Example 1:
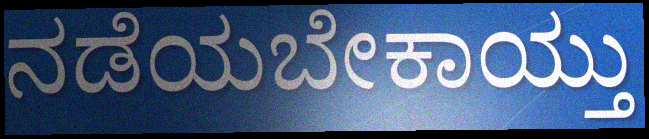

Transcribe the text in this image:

ನಡೆಯಬೇಕಾಯ್ತು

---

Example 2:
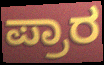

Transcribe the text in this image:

ಪ್ರಾರ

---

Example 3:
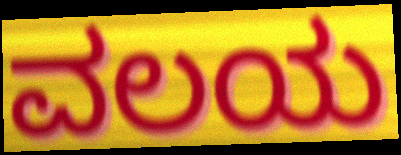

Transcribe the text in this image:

ವಲಯ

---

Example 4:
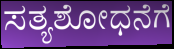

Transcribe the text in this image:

ಸತ್ಯಶೋಧನೆಗೆ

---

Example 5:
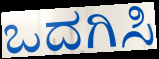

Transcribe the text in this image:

ಒದಗಿಸಿ